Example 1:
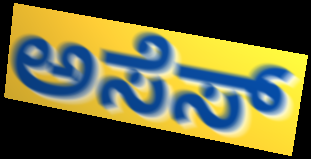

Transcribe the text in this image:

ಅಸೆಸ್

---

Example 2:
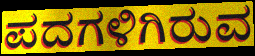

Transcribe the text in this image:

ಪದಗಳಿಗಿರುವ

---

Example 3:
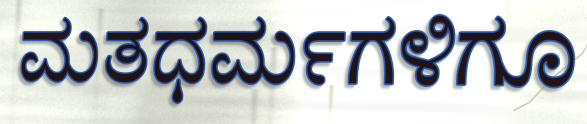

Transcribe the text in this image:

ಮತಧರ್ಮಗಳಿಗೂ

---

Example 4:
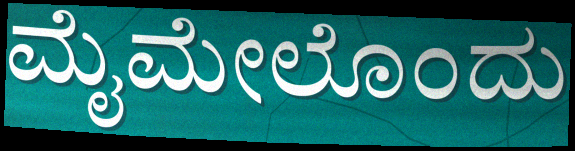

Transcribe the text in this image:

ಮೈಮೇಲೊಂದು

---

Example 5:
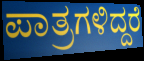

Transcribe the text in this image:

ಪಾತ್ರಗಳಿದ್ದರೆ